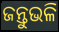
ଜନ୍ତୁଭଳି